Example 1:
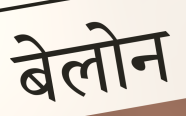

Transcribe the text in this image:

बेलोन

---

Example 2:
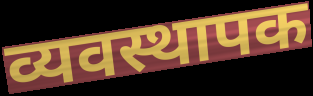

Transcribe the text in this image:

व्यवस्थापक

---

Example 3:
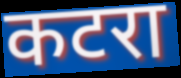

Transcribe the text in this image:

कटरा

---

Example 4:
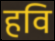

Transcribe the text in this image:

हवि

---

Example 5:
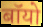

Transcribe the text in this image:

बॉयो